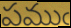
పముఁ